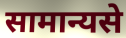
सामान्यसे